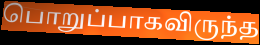
பொறுப்பாகவிருந்த